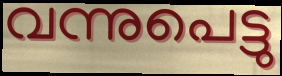
വന്നുപെട്ടു